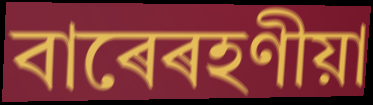
বাৰেৰহণীয়া